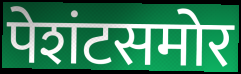
पेशंटसमोर